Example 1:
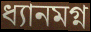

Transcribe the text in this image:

ধ্যানমগ্ন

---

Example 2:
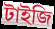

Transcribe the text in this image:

টাইজি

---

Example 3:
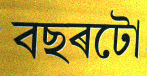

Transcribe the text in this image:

বছৰটো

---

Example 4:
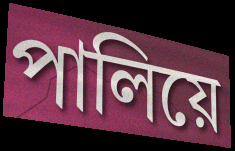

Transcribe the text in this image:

পালিয়ে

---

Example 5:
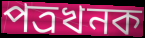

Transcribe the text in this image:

পত্ৰখনক